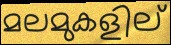
മലമുകളില്